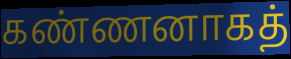
கண்ணனாகத்